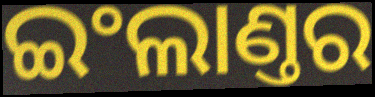
ଇଂଲାଣ୍ତର